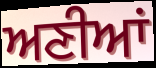
ਅਣੀਆਂ